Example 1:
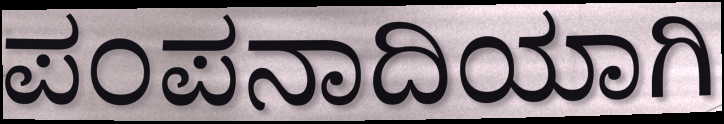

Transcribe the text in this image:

ಪಂಪನಾದಿಯಾಗಿ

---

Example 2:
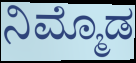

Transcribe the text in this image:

ನಿಮ್ಮೊಡ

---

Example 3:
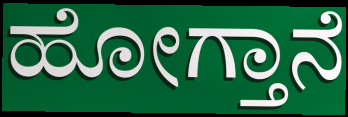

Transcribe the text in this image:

ಹೋಗ್ತಾನೆ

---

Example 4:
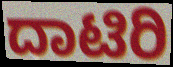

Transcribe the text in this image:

ದಾಟಿರಿ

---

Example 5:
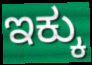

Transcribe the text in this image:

ಇಕ್ಕು